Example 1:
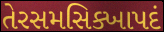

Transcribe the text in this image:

તેરસમસિક્ખાપદં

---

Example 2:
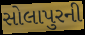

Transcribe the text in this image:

સોલાપુરની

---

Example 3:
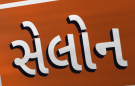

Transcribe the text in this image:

સેલોન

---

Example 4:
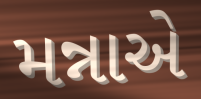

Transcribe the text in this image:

મન્નાએ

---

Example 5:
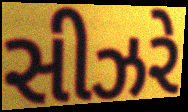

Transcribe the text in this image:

સીઝરે